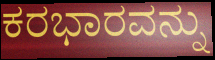
ಕರಭಾರವನ್ನು